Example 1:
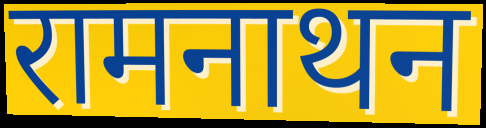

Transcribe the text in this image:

रामनाथन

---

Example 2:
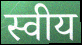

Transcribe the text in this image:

स्वीय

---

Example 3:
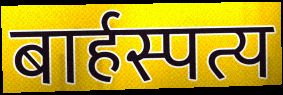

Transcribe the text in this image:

बार्हस्पत्य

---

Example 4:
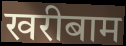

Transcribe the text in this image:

खरीबाम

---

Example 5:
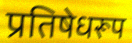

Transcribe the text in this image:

प्रतिषेधरूप